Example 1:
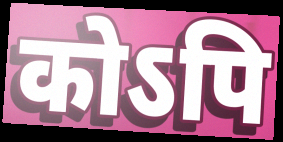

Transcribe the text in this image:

कोऽपि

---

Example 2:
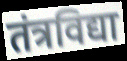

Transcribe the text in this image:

तंत्रविद्या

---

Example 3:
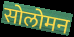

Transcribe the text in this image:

सोलोमन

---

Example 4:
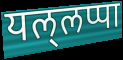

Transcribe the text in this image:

यल्लप्पा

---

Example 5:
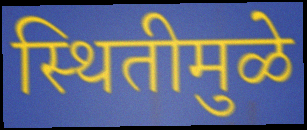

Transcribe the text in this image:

स्थितीमुळे